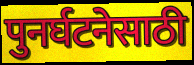
पुनर्घटनेसाठी